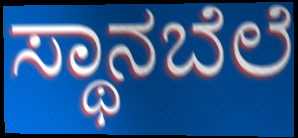
ಸ್ಥಾನಬೆಲೆ